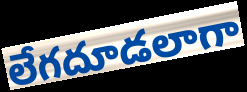
లేగదూడలాగా